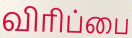
விரிப்பை